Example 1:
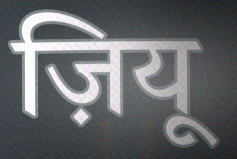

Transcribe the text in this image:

ज़ियू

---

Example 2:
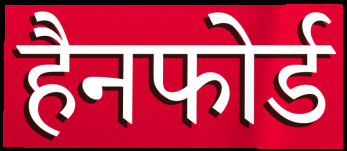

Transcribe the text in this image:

हैनफोर्ड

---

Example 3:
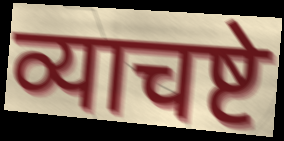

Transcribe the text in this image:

व्याचष्टे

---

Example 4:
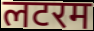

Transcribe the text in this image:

लटरम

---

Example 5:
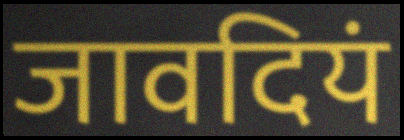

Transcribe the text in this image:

जावदियं